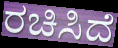
ರಚಿಸಿದೆ